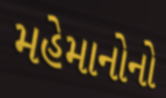
મહેમાનોનો